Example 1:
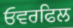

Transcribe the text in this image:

ਓਵਰਫਿਲ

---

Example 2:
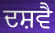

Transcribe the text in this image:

ਦਸ਼ਵੈ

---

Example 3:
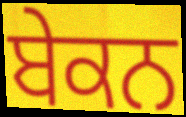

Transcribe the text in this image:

ਬੇਕਨ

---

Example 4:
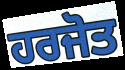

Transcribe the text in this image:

ਹਰਜੋਤ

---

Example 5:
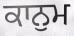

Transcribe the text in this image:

ਕਾਨੁਮ